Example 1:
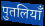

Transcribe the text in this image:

पुतलियाँ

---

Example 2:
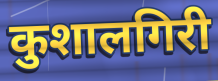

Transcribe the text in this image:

कुशालगिरी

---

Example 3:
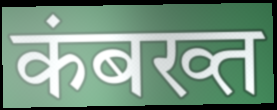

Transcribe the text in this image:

कंबख्त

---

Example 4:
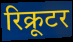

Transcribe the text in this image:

रिक्रूटर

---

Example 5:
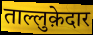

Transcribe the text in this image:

ताल्लुक़ेदार